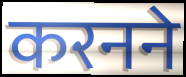
करनने